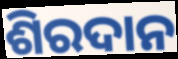
ଶିରଦାନ